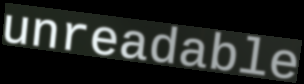
unreadable